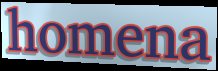
homena